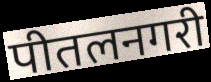
पीतलनगरी